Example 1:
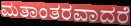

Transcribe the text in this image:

ಮತಾಂತರವಾದರೆ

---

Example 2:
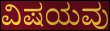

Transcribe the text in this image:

ವಿಷಯವು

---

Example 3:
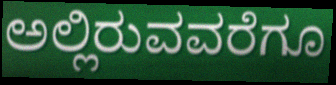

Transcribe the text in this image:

ಅಲ್ಲಿರುವವರೆಗೂ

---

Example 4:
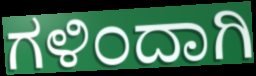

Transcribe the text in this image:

ಗಳಿಂದಾಗಿ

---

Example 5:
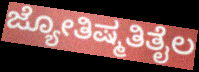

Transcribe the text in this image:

ಜ್ಯೋತಿಷ್ಮತಿತೈಲ